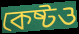
কেষ্টও